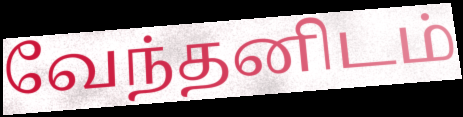
வேந்தனிடம்